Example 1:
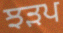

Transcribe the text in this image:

ਝੜਪ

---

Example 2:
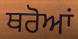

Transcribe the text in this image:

ਥਰੋਆਂ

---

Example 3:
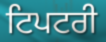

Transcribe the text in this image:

ਟਿਪਟਰੀ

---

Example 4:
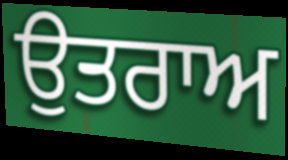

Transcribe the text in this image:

ਉਤਰਾਅ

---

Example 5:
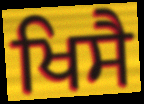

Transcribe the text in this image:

ਖਿਸੈ